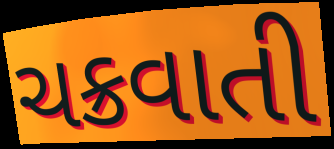
ચક્રવાતી